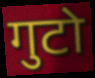
गुटो